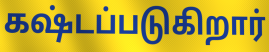
கஷ்டப்படுகிறார்